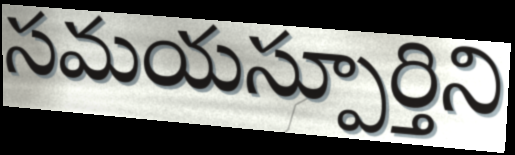
సమయస్పూర్తిని